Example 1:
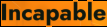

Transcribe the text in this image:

Incapable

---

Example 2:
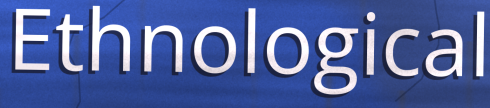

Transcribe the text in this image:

Ethnological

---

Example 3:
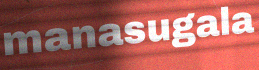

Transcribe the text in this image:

manasugala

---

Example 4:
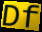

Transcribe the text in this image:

Df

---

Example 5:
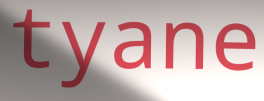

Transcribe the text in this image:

tyane